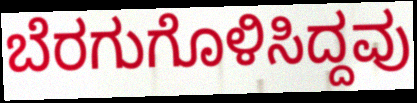
ಬೆರಗುಗೊಳಿಸಿದ್ದವು